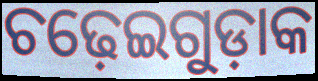
ଚଢ଼େଇଗୁଡ଼ାକ